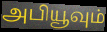
அபியூவும்